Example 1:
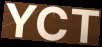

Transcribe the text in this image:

YCT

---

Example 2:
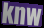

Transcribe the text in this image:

knw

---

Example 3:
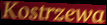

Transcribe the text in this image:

Kostrzewa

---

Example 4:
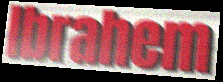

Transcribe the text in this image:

Ibrahem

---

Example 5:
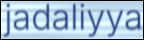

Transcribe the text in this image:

jadaliyya